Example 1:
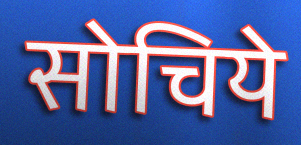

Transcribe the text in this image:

सोचिये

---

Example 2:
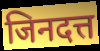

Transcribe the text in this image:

जिनदत्त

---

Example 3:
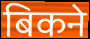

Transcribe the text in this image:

बिकने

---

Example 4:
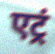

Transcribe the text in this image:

एट्रं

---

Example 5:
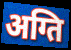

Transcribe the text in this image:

अग्ति